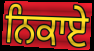
ਨਿਕਾਏ